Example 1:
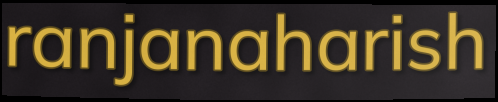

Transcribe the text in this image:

ranjanaharish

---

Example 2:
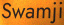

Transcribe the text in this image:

Swamji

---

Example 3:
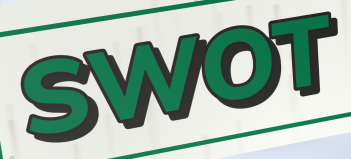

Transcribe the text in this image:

SWOT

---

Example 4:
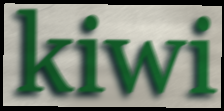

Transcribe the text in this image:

kiwi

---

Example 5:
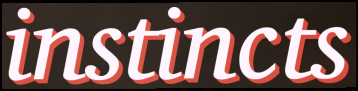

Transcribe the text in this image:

instincts